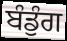
ਬੰਡੁੰਗ